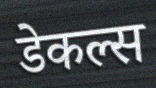
डेकल्स